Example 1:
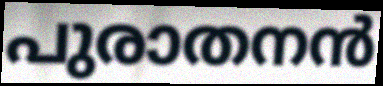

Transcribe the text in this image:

പുരാതനൻ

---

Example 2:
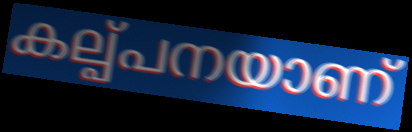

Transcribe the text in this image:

കല്പ്പനയാണ്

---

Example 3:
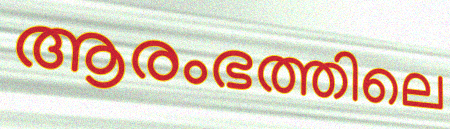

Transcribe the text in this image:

ആരംഭത്തിലെ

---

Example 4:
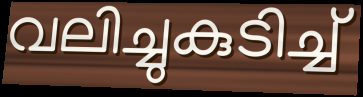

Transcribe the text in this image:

വലിച്ചുകുടിച്ച്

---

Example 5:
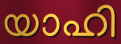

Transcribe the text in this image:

യാഹി